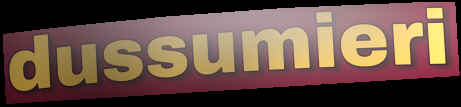
dussumieri